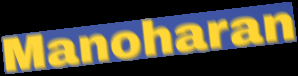
Manoharan